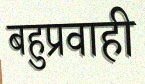
बहुप्रवाही